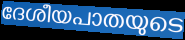
ദേശീയപാതയുടെ